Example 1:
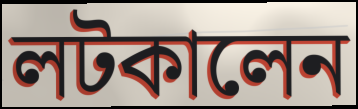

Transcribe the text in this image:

লটকালেন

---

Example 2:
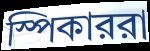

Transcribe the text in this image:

স্পিকাররা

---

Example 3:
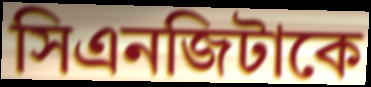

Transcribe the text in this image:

সিএনজিটাকে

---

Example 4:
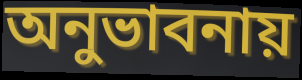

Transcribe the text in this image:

অনুভাবনায়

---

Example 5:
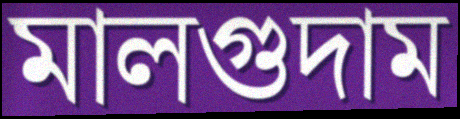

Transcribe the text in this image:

মালগুদাম